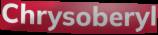
Chrysoberyl